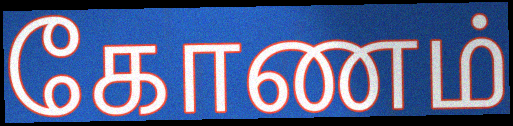
கோணம்